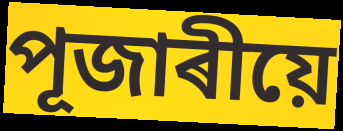
পূজাৰীয়ে